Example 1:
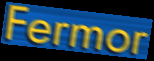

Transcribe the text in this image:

Fermor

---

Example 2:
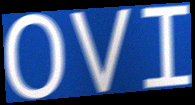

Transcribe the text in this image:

OVI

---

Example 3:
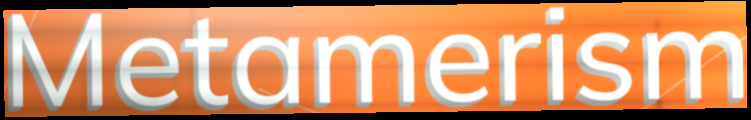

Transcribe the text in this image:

Metamerism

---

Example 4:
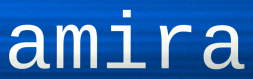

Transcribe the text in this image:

amira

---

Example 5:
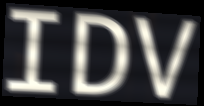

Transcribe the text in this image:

IDV